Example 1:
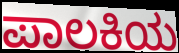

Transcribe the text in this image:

ಪಾಲಕಿಯ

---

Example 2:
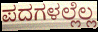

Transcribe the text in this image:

ಪದಗಳಲ್ಲೆಲ್ಲ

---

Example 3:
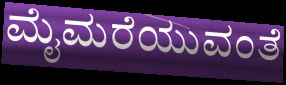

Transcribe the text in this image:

ಮೈಮರೆಯುವಂತೆ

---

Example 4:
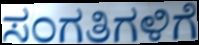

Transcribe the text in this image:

ಸಂಗತಿಗಳಿಗೆ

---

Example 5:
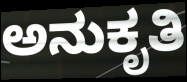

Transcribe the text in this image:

ಅನುಕೃತಿ